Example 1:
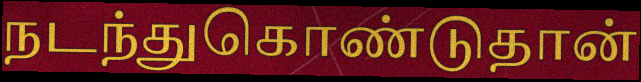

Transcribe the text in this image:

நடந்துகொண்டுதான்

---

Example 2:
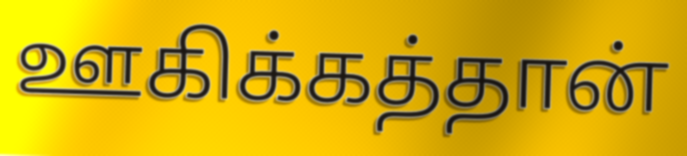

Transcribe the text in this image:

ஊகிக்கத்தான்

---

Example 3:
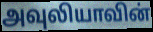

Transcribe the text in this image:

அவுலியாவின்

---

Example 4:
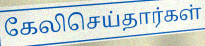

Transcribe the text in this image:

கேலிசெய்தார்கள்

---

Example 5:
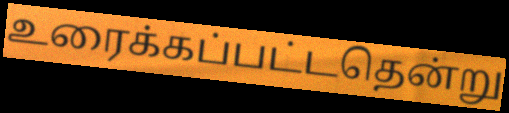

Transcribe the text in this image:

உரைக்கப்பட்டதென்று